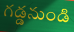
గడ్డనుండి